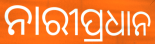
ନାରୀପ୍ରଧାନ